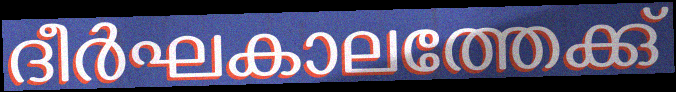
ദീർഘകാലത്തേക്കു്